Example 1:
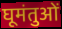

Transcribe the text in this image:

घूमंतुओं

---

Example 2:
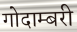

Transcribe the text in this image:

गोदाम्बरी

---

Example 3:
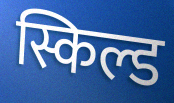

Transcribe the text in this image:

स्किल्ड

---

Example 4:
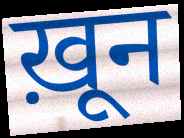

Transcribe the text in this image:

ख़ून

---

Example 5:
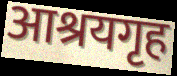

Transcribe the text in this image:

आश्रयगृह